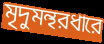
মৃদুমন্থরধারে